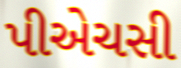
પીએચસી